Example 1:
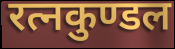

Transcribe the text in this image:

रत्नकुण्डल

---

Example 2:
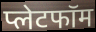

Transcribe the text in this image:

प्लेटफॉम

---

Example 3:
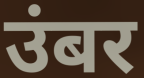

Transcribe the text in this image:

उंबर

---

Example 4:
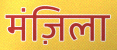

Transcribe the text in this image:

मंज़िला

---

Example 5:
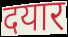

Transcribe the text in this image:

दयार